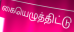
கையெழுத்திட்டு